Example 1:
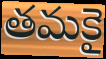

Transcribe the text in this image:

తమకై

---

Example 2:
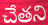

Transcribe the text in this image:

చేతని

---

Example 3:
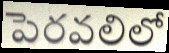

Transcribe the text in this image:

పెరవలిలో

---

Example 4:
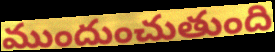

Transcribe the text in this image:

ముందుంచుతుంది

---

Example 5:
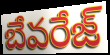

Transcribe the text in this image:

బేవరేజ్